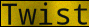
Twist